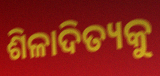
ଶିଳାଦିତ୍ୟକୁ